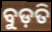
ବୁଡ଼ତି